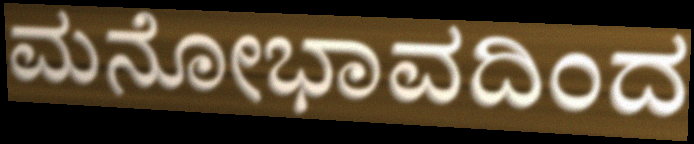
ಮನೋಭಾವದಿಂದ